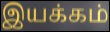
இயக்கம்